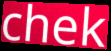
chek